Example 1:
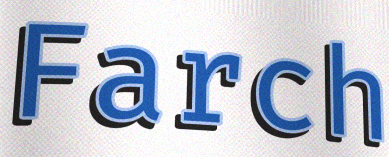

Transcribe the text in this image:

Farch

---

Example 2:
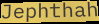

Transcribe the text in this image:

Jephthah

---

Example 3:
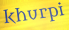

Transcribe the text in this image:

khurpi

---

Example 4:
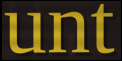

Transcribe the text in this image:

unt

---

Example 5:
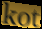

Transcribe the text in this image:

kot